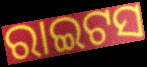
ରାଇଟସ